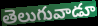
తెలుగువాడూ